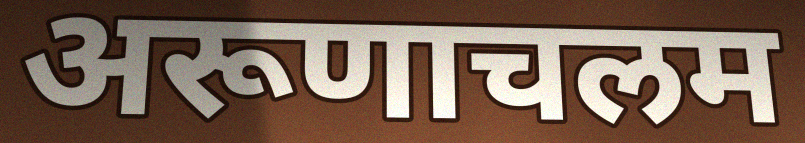
अरूणाचलम